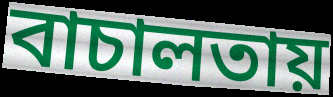
বাচালতায়